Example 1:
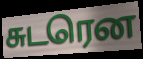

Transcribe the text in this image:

சுடரென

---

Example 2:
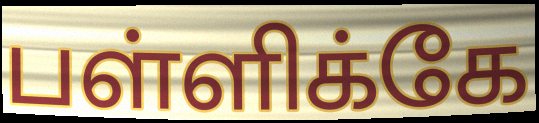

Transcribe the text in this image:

பள்ளிக்கே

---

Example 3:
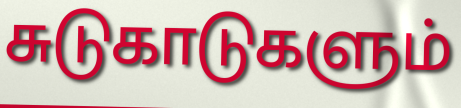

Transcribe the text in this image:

சுடுகாடுகளும்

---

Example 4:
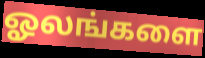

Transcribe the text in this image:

ஓலங்களை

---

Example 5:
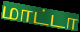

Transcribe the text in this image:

மாட்டா